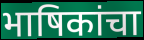
भाषिकांचा